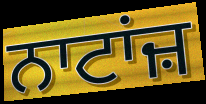
ਨਾਟਾਂਜ਼